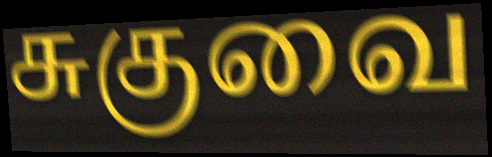
சுகுவை